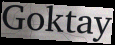
Goktay